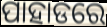
ପାହାଡରେ